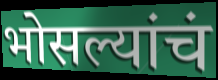
भोसल्यांचं